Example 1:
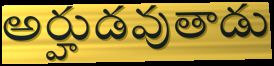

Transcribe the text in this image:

అర్హుడవుతాడు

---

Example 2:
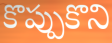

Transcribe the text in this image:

కొప్పుకొని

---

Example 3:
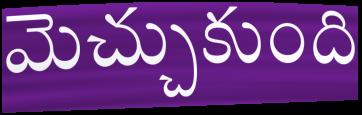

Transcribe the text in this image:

మెచ్చుకుంది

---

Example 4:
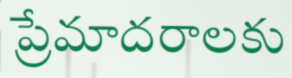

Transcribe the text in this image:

ప్రేమాదరాలకు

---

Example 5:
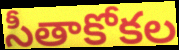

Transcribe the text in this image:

సీతాకోకల